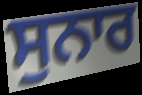
ਸੁਨਾਰ